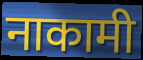
नाकामी